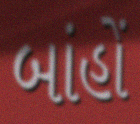
બાંહોં